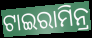
ଟାଇରାମିନ୍ର